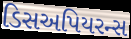
ડિસઅપિયરન્સ